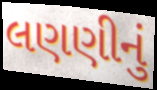
લણણીનું